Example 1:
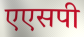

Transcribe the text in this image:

एएसपी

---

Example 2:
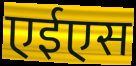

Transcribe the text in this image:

एईएस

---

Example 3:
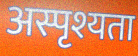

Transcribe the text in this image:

अस्पृश्यता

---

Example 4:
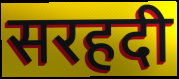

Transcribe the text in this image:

सरहदी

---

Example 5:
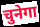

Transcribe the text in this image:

चुनेगा